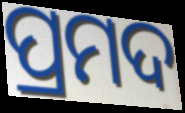
ପ୍ରମଦ